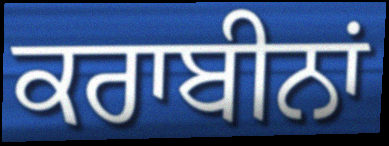
ਕਰਾਬੀਨਾਂ